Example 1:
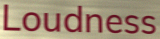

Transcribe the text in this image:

Loudness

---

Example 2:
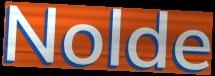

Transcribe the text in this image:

Nolde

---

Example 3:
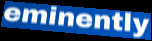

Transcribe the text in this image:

eminently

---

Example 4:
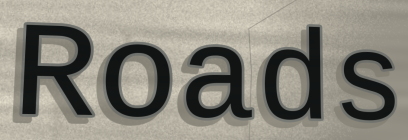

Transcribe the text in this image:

Roads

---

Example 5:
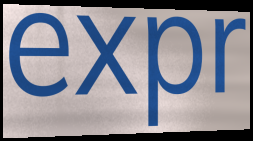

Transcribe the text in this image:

expr